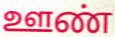
ஊண்